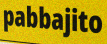
pabbajito